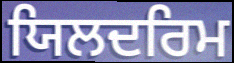
ਯਿਲਦਰਿਮ